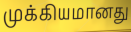
முக்கியமானது